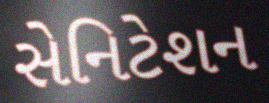
સેનિટેશન